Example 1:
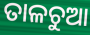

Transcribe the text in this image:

ତାଳଚୁଆ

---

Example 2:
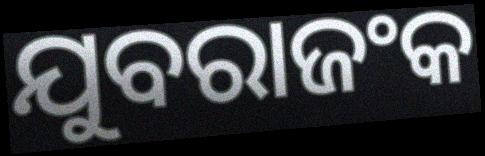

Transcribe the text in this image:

ଯୁବରାଜଂକ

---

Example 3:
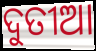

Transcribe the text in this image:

ଦୁତୀଆ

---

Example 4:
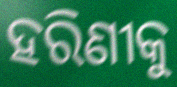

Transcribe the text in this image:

ହରିଣୀକୁ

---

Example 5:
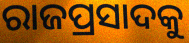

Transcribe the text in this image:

ରାଜପ୍ରସାଦକୁ